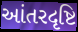
આંતરદૃષ્ટિ